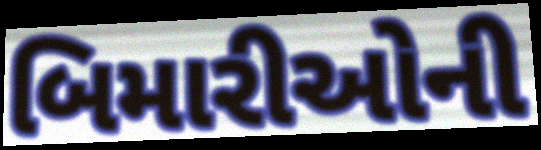
બિમારીઓની